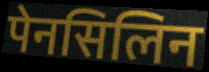
पेनसिलिन